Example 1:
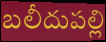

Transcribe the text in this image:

బలీదుపల్లి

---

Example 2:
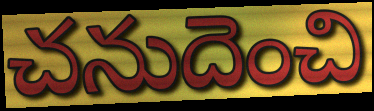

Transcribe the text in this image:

చనుదెంచి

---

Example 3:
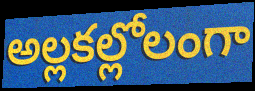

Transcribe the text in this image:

అల్లకల్లోలంగా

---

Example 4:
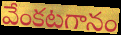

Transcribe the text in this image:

వేంకటగానం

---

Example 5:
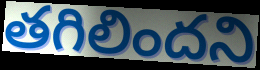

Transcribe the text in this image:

తగిలిందని